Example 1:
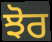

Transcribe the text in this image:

ਝੋਰ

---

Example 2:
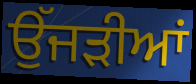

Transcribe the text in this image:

ਉੱਜੜੀਆਂ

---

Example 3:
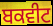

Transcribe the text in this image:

ਬਕਵੀਟ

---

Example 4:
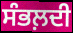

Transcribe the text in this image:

ਸੰਭਲ਼ਦੀ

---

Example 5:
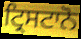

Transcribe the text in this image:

ਟ੍ਰਿਸਟਾਨੋ